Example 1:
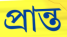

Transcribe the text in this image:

প্রান্ত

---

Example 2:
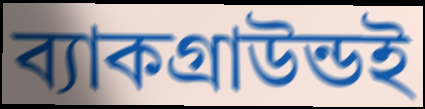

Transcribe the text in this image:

ব্যাকগ্রাউন্ডই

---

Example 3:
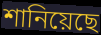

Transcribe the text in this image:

শানিয়েছে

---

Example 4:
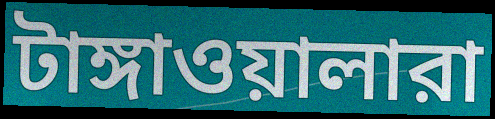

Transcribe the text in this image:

টাঙ্গাওয়ালারা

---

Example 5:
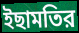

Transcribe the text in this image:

ইছামতির